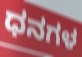
ಧನಗಳ